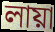
লায়া